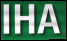
IHA